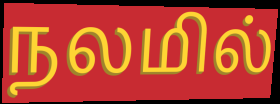
நலமில்